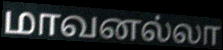
மாவனல்லா